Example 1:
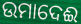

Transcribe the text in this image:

ଉମାଦେଈ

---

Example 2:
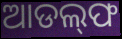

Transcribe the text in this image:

ଆଡଲ୍‌ଫ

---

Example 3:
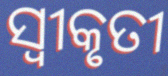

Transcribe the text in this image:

ସ୍ୱୀକୃତୀ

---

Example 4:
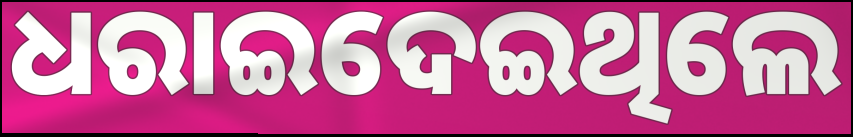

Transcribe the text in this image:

ଧରାଇଦେଇଥିଲେ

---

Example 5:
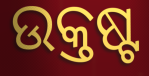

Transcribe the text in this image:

ଉକ୍ତଷ୍ଟ